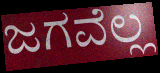
ಜಗವೆಲ್ಲ